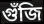
গুঁজি